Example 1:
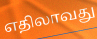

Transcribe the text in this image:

எதிலாவது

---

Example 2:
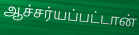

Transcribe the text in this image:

ஆச்சர்யப்பட்டான்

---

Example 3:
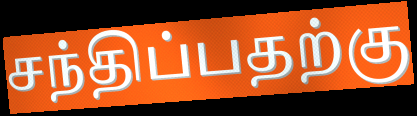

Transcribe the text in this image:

சந்திப்பதற்கு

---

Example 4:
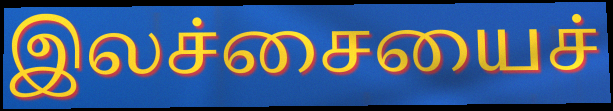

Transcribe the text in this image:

இலச்சையைச்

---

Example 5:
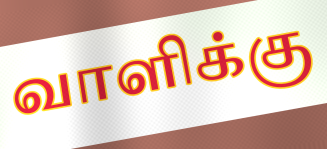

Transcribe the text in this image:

வாளிக்கு